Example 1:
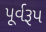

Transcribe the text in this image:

પૂર્વરૂપ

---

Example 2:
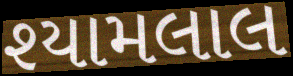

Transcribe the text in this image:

શ્યામલાલ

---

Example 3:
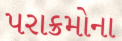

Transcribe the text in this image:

પરાક્રમોના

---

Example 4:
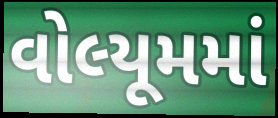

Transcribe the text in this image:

વોલ્યૂમમાં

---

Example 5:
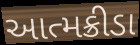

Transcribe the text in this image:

આત્મક્રીડા